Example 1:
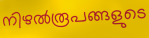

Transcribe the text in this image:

നിഴൽരൂപങ്ങളുടെ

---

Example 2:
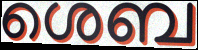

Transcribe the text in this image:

ശെബ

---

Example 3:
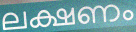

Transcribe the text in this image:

ലക്ഷണം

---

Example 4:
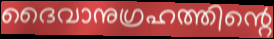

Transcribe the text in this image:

ദൈവാനുഗ്രഹത്തിന്റെ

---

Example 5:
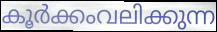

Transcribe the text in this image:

കൂർക്കംവലിക്കുന്ന